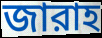
জারাহ